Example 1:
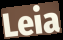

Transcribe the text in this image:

Leia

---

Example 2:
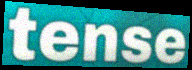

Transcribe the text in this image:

tense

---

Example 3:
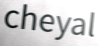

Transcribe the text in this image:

cheyal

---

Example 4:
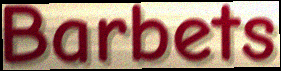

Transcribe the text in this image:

Barbets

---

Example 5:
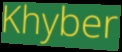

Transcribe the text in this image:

Khyber